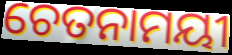
ଚେତନାମୟୀ